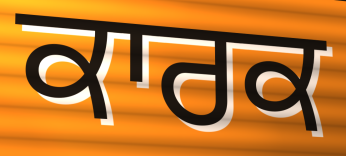
ਕਾਰਕ